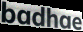
badhae